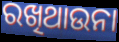
ରଖିଥାଉନା